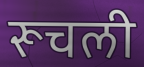
रूचली